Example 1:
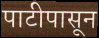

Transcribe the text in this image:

पाटीपासून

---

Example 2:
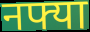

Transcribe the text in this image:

नफ्या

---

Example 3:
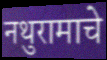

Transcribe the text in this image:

नथुरामाचे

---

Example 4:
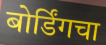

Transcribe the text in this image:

बोर्डिंगचा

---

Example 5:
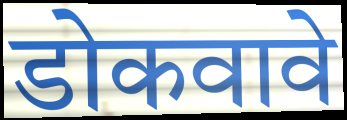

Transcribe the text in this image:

डोकवावे